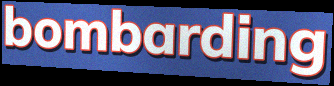
bombarding